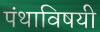
पंथाविषयी